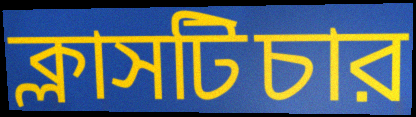
ক্লাসটিচার